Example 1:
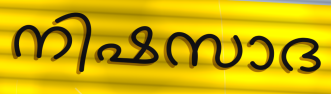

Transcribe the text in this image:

നിഷസാദ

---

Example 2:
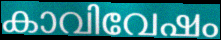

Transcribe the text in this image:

കാവിവേഷം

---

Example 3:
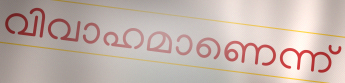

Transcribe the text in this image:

വിവാഹമാണെന്ന്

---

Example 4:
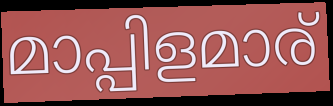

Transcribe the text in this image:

മാപ്പിളമാര്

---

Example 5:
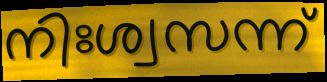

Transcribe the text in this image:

നിഃശ്വസന്ന്